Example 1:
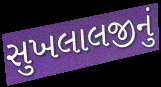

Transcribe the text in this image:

સુખલાલજીનું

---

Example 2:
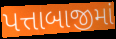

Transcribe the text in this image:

પત્તાબાજીમાં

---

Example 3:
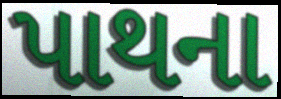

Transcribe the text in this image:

પાથના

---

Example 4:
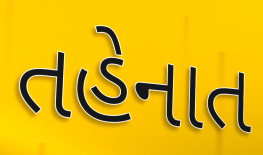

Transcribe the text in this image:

તહેનાત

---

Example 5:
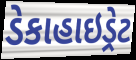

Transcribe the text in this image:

ડેકાહાઇડ્રેટ